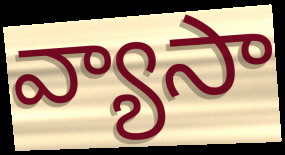
వ్యాసా